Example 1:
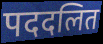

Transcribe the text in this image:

पददलित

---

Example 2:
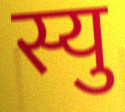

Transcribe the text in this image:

स्यु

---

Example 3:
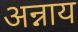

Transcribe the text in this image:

अन्नाय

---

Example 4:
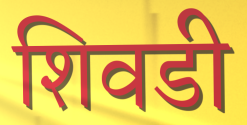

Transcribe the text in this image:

शिवडी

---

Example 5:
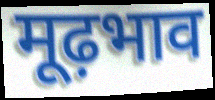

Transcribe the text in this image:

मूढ़भाव